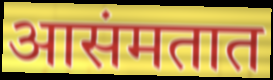
आसंमतात